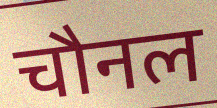
चौनल